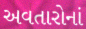
અવતારોનાં